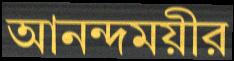
আনন্দময়ীর